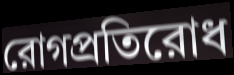
রোগপ্রতিরোধ